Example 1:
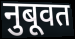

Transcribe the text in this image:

नुबूवत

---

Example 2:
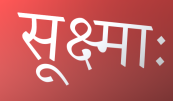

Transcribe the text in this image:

सूक्ष्माः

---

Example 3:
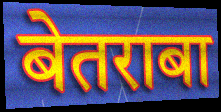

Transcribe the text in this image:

बेतराबा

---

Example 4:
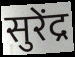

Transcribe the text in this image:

सुरेंद्र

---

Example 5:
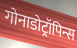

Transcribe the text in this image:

गोनाडोट्रॉपिन्स